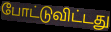
போட்டுவிட்டது